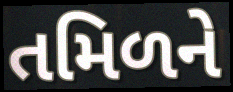
તમિળને